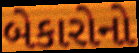
બેકારોનો